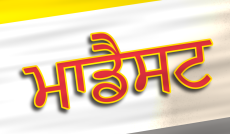
ਮਾਡੈਸਟ